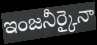
ఇంజనీర్కైనా